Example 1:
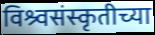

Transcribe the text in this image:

विश्र्वसंस्कृतीच्या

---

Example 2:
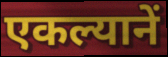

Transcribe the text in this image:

एकल्यानें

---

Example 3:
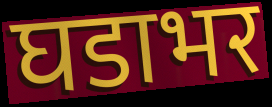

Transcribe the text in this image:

घडाभर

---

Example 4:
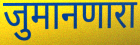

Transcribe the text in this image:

जुमानणारा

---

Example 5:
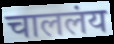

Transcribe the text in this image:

चाललंय